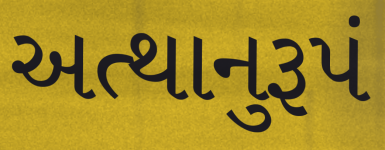
અત્થાનુરૂપં